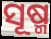
ସୂଷ୍ମ